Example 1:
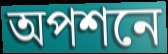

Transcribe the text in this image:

অপশনে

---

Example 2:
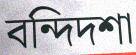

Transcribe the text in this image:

বন্দিদশা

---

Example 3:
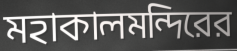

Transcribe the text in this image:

মহাকালমন্দিরের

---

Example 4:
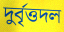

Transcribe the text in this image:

দুর্বৃত্তদল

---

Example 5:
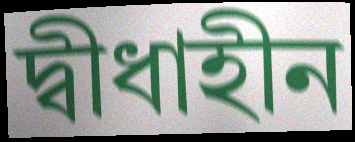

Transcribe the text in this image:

দ্বীধাহীন